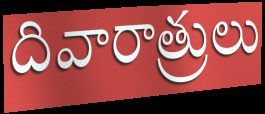
దివారాత్రులు